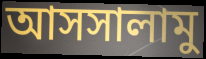
আসসালামু